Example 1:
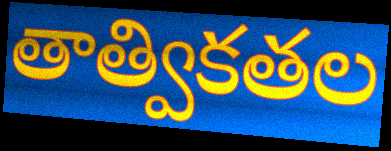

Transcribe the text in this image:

తాత్వికతల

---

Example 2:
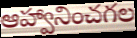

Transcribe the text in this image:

ఆహ్వానించగల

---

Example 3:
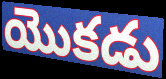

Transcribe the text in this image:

యొకడు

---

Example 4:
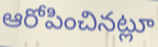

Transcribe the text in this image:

ఆరోపించినట్లూ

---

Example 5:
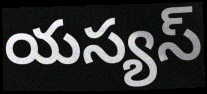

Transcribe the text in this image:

యస్యస్